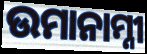
ଉମାନାମ୍ନୀ